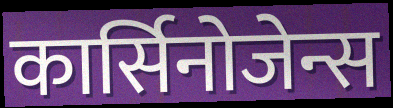
कार्सिनोजेन्स